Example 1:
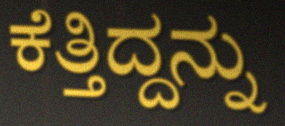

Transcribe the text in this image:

ಕೆತ್ತಿದ್ದನ್ನು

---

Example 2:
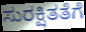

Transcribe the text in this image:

ಸುರಕ್ಷಿತತೆಗೆ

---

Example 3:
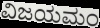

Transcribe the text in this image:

ವಿಜಯಮಂ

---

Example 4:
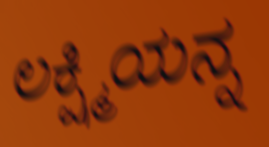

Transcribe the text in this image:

ಲಕ್ಷ್ಮಿಯನ್ನ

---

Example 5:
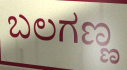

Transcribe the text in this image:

ಬಲಗಣ್ಣ